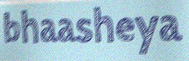
bhaasheya